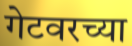
गेटवरच्या